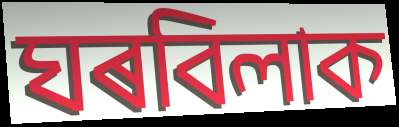
ঘৰবিলাক